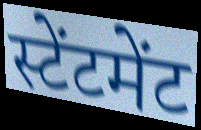
स्टेंटमेंट